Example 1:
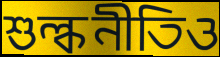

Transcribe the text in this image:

শুল্কনীতিও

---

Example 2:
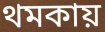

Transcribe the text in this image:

থমকায়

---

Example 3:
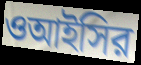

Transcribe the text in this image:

ওআইসির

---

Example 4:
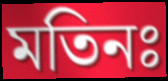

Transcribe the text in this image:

মতিনঃ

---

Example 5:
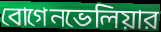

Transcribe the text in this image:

বোগেনভেলিয়ার